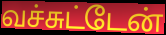
வச்சுட்டேன்